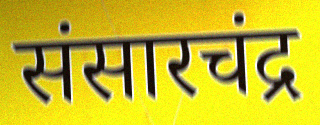
संसारचंद्र